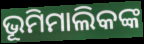
ଭୂମିମାଲିକଙ୍କ